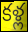
కళ్ల